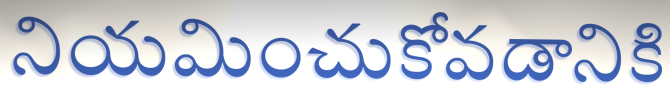
నియమించుకోవడానికి